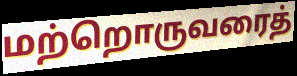
மற்றொருவரைத்